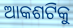
ଆକଶଟିକୁ